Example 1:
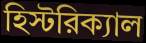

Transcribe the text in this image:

হিস্টরিক্যাল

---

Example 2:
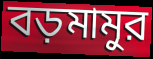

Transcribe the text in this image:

বড়মামুর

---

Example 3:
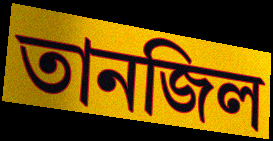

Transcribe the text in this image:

তানজিল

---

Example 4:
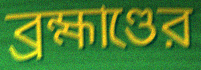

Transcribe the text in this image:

ব্রহ্মাণ্ডের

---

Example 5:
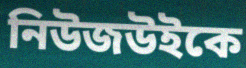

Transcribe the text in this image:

নিউজউইকে